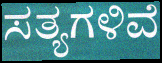
ಸತ್ಯಗಳಿವೆ